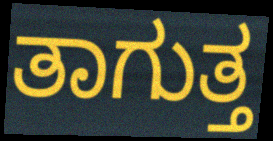
ತಾಗುತ್ತ